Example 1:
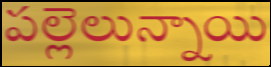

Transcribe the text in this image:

పల్లెలున్నాయి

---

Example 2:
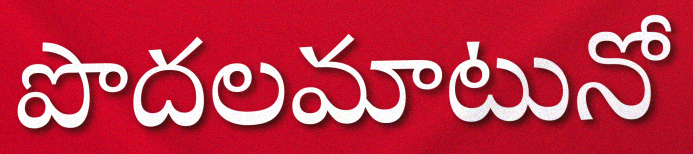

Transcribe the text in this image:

పొదలమాటునో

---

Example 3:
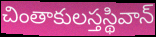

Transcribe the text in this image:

చింతాకులస్తస్థివాన్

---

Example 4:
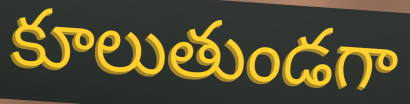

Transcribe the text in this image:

కూలుతుండగా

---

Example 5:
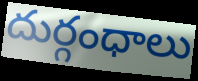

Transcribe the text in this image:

దుర్గంధాలు